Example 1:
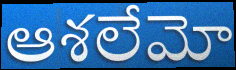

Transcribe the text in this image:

ఆశలేమో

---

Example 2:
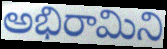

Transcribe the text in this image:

అభిరామిని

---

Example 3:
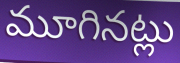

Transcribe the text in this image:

మూగినట్లు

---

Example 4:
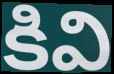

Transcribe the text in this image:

కివి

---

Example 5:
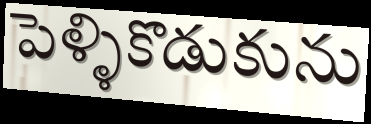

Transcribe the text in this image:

పెళ్ళికొడుకును